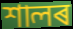
শালৰ